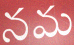
నమ